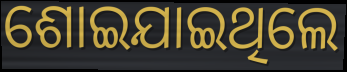
ଶୋଇଯାଇଥିଲେ